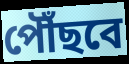
পৌঁছবে